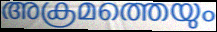
അക്രമത്തെയും